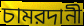
চামরদানী